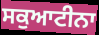
ਸਕੁਆਟੀਨਾ